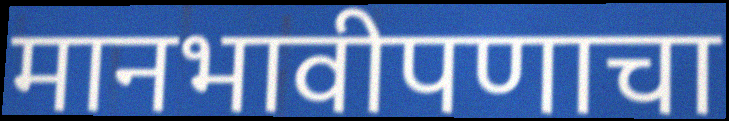
मानभावीपणाचा